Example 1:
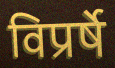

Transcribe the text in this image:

विप्रर्षे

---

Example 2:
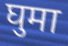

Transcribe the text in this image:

घुमा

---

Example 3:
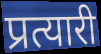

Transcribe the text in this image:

प्रत्यारी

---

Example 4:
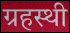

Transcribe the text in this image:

ग्रहस्थी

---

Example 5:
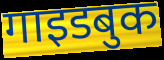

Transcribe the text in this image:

गाइडबुक